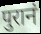
पुरानं